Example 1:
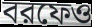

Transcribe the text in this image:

বরফেও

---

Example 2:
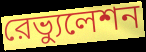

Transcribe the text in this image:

রেভ্যুলেশন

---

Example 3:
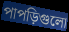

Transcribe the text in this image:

পাপড়িগুলো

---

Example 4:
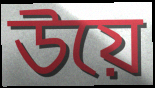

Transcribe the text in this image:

উয়ে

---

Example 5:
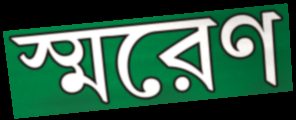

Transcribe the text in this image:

স্মরেণ